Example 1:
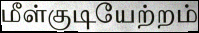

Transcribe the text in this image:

மீள்குடியேற்றம்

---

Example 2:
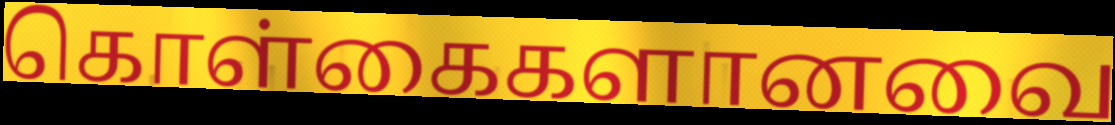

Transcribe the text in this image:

கொள்கைகளானவை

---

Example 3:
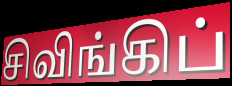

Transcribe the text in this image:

சிவிங்கிப்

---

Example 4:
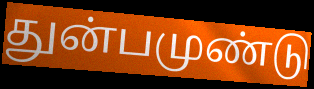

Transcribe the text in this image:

துன்பமுண்டு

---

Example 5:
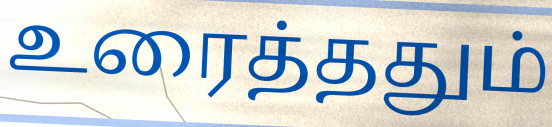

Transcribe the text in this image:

உரைத்ததும்